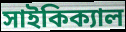
সাইকিক্যাল